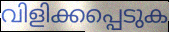
വിളിക്കപ്പെടുക